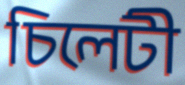
চিলেটী